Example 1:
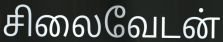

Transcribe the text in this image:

சிலைவேடன்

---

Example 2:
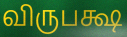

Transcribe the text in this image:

விருபக்ஷ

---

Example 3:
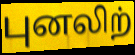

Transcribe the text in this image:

புனலிற்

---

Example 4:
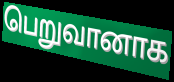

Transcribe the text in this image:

பெறுவானாக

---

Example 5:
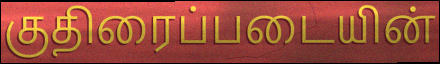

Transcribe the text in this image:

குதிரைப்படையின்